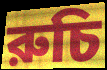
রুচি